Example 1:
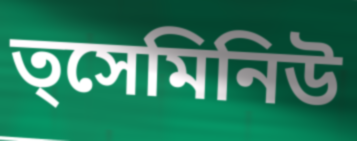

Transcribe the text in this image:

ত্সেমিনিউ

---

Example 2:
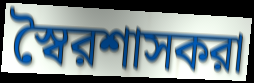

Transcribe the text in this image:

স্বৈরশাসকরা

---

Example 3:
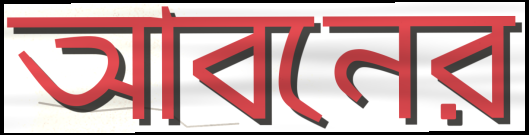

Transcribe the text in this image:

আবনের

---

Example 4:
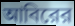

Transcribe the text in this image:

আবিরের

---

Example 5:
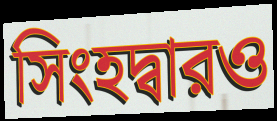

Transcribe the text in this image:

সিংহদ্বারও